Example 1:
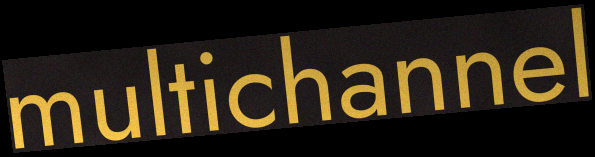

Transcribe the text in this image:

multichannel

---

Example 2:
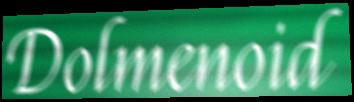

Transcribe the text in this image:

Dolmenoid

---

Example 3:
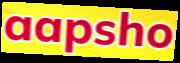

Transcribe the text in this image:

aapsho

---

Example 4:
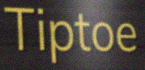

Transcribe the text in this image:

Tiptoe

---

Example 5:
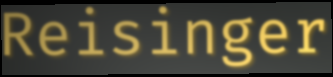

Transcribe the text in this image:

Reisinger